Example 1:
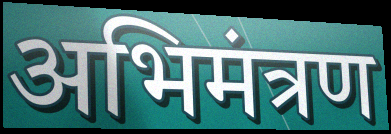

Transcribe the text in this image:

अभिमंत्रण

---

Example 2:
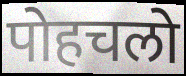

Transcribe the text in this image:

पोहचलो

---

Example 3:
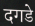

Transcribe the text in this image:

दगडे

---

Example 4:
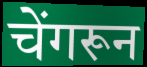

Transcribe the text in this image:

चेंगरून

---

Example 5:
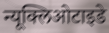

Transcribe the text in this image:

न्यूक्लिओटाइडे